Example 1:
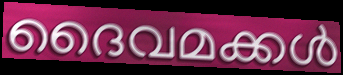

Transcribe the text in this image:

ദൈവമക്കൾ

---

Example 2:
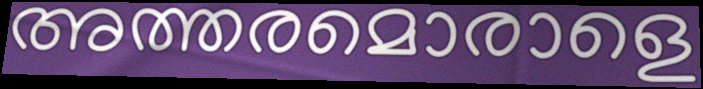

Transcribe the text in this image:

അത്തരമൊരാളെ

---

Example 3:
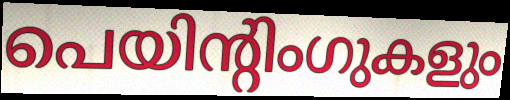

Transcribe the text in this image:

പെയിന്റിംഗുകളും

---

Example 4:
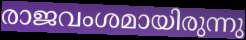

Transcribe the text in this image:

രാജവംശമായിരുന്നു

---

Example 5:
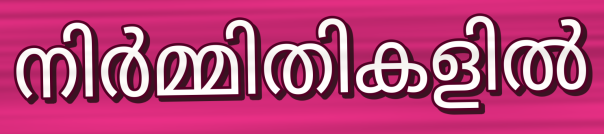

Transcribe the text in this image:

നിർമ്മിതികളിൽ